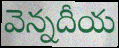
వెన్నదీయ